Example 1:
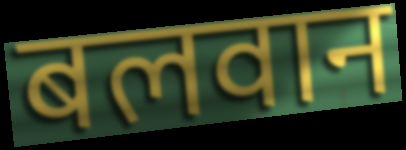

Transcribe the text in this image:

बलवान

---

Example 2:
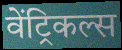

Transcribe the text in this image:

वेंट्रिकल्स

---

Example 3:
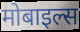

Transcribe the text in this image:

मोबाइल्स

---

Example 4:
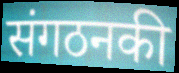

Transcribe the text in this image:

संगठनकी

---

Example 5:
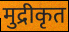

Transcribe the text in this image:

मुद्रीकृत